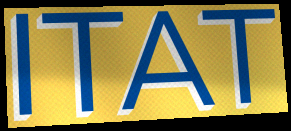
ITAT